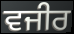
ਵਜੀਰ